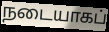
நடையாகப்